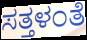
ಸತ್ತಳಂತೆ